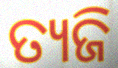
ତ୍ୟଜି